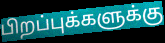
பிறப்புக்களுக்கு